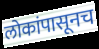
लोकांपासूनच